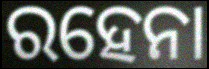
ରହେନା